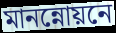
মানন্নোয়নে